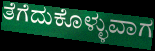
ತೆಗೆದುಕೊಳ್ಳುವಾಗ